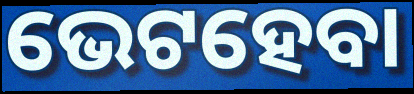
ଭେଟହେବା